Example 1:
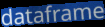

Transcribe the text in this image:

dataframe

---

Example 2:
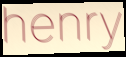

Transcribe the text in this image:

henry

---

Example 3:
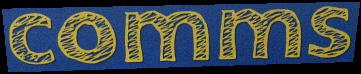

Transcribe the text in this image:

comms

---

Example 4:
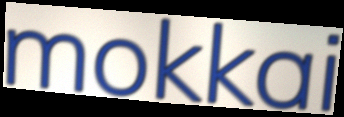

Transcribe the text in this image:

mokkai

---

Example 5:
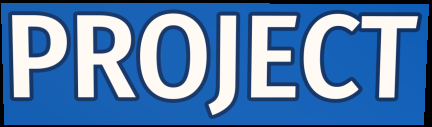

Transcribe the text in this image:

PROJECT